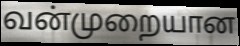
வன்முறையான